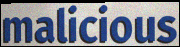
malicious